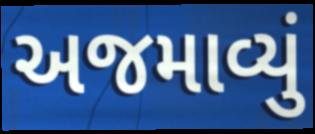
અજમાવ્યું